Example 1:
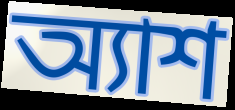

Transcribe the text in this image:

অ্যাশ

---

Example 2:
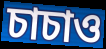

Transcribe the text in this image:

চাচাও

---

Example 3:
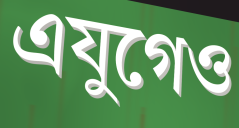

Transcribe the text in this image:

এযুগেও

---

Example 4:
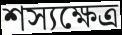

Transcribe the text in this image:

শস্যক্ষেত্র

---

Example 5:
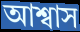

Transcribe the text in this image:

আশ্বাস